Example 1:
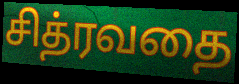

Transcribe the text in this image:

சித்ரவதை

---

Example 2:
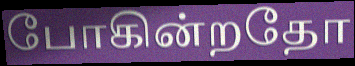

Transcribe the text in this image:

போகின்றதோ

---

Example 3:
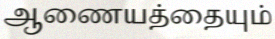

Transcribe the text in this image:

ஆணையத்தையும்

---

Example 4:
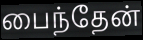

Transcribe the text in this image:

பைந்தேன்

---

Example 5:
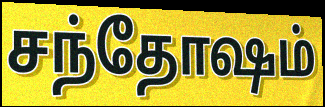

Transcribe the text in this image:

சந்தோஷம்